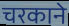
चरकाने